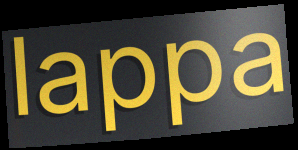
lappa